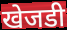
खेजडी